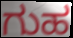
ಗುಹ